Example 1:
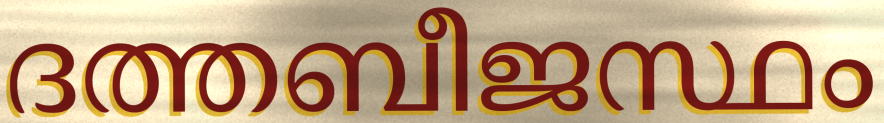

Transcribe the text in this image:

ദത്തബീജസ്ഥം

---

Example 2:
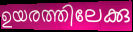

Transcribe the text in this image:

ഉയരത്തിലേക്കു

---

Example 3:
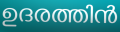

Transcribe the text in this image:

ഉദരത്തിൻ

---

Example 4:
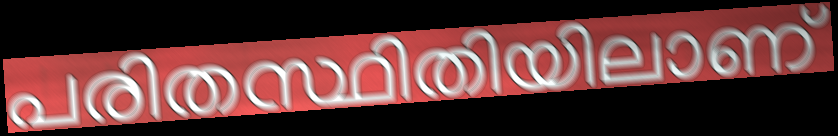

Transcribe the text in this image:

പരിതസ്ഥിതിയിലാണ്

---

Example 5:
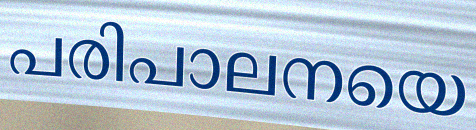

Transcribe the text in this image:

പരിപാലനയെ